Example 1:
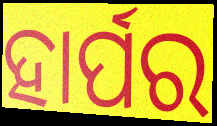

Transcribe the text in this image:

ହାର୍ପର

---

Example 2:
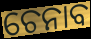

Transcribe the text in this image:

ଚେନାବ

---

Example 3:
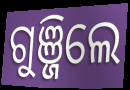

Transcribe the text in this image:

ଗୁଞ୍ଜିଲେ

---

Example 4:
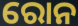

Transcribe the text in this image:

ରୋନ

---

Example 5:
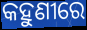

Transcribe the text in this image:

କହୁଣୀରେ